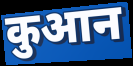
कुआन